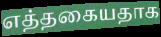
எத்தகையதாக